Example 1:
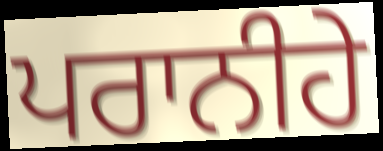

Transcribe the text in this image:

ਪਰਾਨੀਹੇ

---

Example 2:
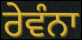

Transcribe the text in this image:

ਰੇਵੰਨਾ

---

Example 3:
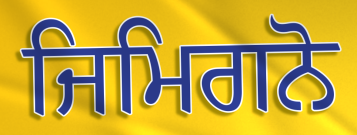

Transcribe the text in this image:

ਜਿਮਿਗਨੋ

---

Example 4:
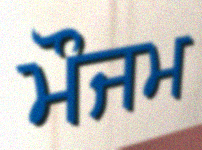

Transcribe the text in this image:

ਮੌਜਮ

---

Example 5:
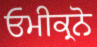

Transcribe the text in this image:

ਓਮੀਕ੍ਰਨੋ